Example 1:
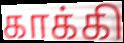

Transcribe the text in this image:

காக்கி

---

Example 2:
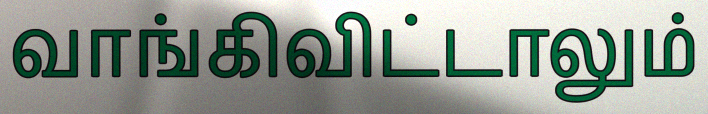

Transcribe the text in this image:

வாங்கிவிட்டாலும்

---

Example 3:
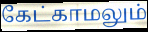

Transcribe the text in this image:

கேட்காமலும்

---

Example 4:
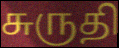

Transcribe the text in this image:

சுருதி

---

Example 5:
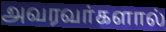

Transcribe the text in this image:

அவரவர்களால்